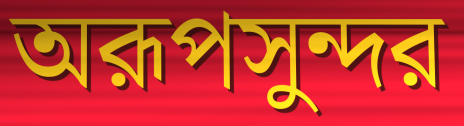
অরূপসুন্দর